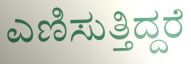
ಎಣಿಸುತ್ತಿದ್ದರೆ